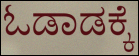
ಓಡಾಡಕ್ಕೆ